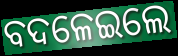
ବଦଳେଇଲେ